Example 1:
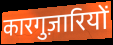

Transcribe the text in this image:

कारगुज़ारियों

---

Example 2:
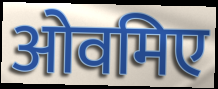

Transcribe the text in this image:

ओवमिए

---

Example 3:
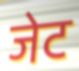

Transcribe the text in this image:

जेट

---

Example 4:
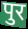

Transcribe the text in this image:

पुर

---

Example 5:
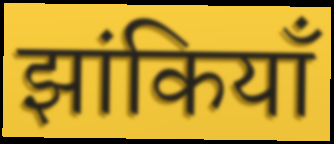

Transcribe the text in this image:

झांकियाँ